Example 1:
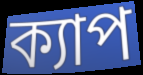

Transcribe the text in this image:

ক্যাপ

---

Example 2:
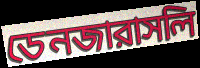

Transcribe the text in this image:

ডেনজারাসলি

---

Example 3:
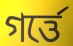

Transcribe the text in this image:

গর্ত্তে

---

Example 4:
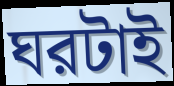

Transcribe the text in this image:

ঘরটাই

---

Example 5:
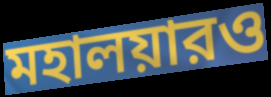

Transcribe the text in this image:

মহালয়ারও